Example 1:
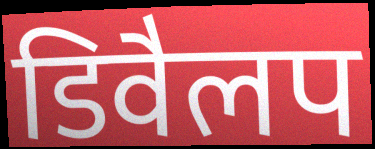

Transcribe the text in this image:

डिवैलप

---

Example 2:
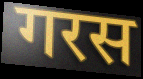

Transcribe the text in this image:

गरस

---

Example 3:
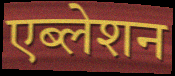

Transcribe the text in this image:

एब्लेशन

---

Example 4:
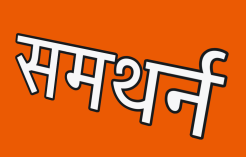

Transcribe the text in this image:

समथर्न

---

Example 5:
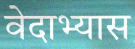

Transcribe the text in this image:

वेदाभ्यास